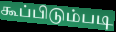
கூப்பிடும்படி